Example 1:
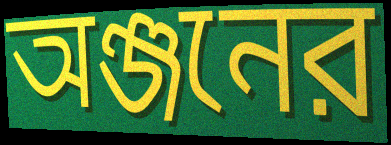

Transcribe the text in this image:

অঞ্জনের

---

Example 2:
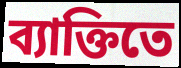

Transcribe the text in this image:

ব্যাক্তিতে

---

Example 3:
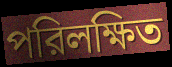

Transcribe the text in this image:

পরিলক্ষিত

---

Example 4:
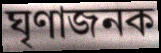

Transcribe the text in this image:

ঘৃণাজনক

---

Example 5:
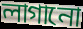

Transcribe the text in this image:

লাগানো